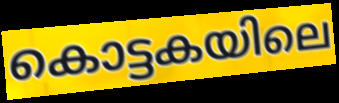
കൊട്ടകയിലെ